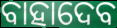
ବାହାଦେବ